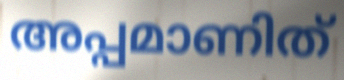
അപ്പമാണിത്